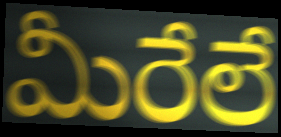
మీరేలే